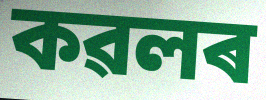
কৱলৰ